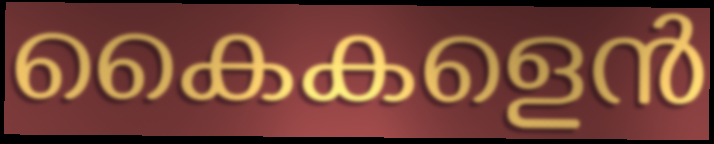
കൈകളെൻ